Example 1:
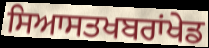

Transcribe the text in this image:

ਸਿਆਸਤਖਬਰਾਂਖੇਡ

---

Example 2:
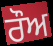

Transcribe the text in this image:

ਰੌਅ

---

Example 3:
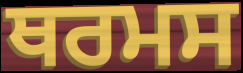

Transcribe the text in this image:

ਥਰਮਸ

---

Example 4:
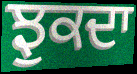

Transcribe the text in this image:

ਝੁਕਦਾ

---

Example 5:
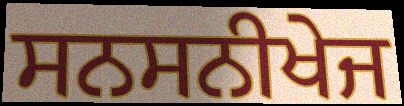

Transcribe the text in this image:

ਸਨਸਨੀਖੇਜ